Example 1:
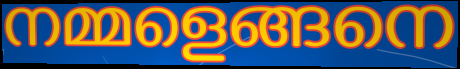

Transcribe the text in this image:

നമ്മളെങ്ങനെ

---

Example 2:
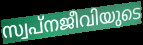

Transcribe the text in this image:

സ്വപ്നജീവിയുടെ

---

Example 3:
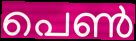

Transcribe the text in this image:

പെൺ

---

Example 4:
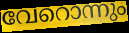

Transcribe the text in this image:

വേറൊന്നും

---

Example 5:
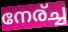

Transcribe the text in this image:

നേര്ച്ച